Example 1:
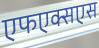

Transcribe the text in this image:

एफएक्सएस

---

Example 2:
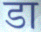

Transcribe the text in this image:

डा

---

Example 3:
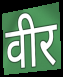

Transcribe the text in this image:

वीर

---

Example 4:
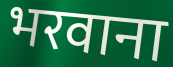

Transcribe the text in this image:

भरवाना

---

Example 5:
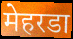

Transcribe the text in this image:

मेहरडा